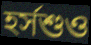
হর্সশুও